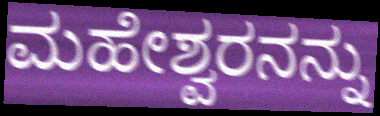
ಮಹೇಶ್ವರನನ್ನು